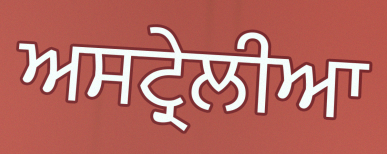
ਅਸਟ੍ਰੇਲੀਆ